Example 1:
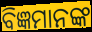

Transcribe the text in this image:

ବିଜ୍ଞମାନଙ୍କ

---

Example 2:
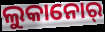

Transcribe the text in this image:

ଲୁକାନୋର୍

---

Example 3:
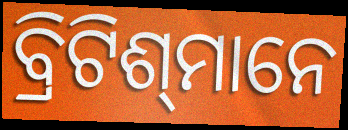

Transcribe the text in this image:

ବ୍ରିଟିଶ୍‌ମାନେ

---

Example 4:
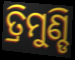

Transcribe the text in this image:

ତ୍ରିମୁଣ୍ଡି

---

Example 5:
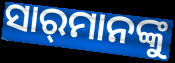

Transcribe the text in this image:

ସାର୍‌ମାନଙ୍କୁ